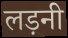
लड़नी